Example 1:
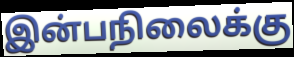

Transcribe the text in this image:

இன்பநிலைக்கு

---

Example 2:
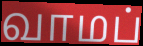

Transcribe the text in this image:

வாமப்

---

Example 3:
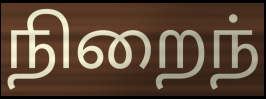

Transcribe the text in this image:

நிறைந்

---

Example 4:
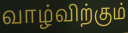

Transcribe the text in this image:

வாழ்விற்கும்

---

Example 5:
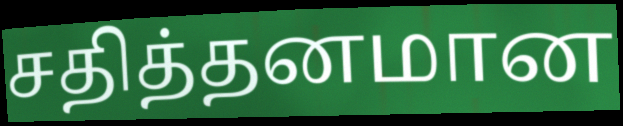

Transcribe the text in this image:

சதித்தனமான